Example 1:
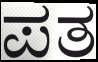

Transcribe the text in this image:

ಪತ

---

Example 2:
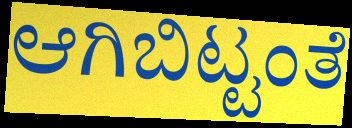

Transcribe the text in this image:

ಆಗಿಬಿಟ್ಟಂತೆ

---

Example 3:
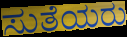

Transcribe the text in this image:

ಸುತೆಯರು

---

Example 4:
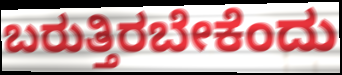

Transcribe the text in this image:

ಬರುತ್ತಿರಬೇಕೆಂದು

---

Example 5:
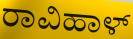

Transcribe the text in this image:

ರಾವಿಹಾಳ್